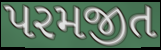
પરમજીત